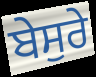
ਬੇਸੁਰੇ